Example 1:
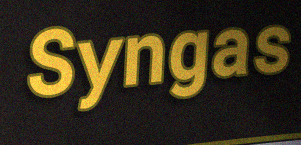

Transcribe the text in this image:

Syngas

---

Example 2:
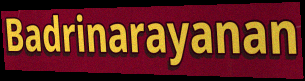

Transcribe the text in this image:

Badrinarayanan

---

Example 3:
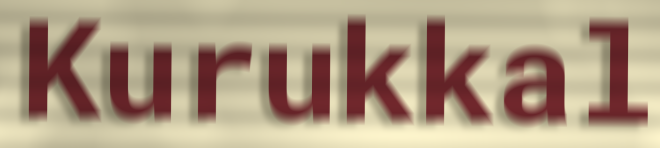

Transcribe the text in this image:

Kurukkal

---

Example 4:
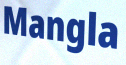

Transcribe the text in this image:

Mangla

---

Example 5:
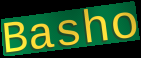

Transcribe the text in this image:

Basho